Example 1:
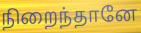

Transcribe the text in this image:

நிறைந்தானே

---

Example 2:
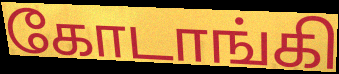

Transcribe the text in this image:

கோடாங்கி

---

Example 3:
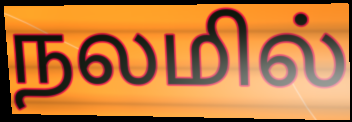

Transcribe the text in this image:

நலமில்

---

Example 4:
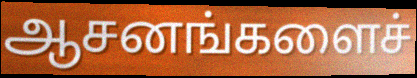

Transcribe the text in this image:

ஆசனங்களைச்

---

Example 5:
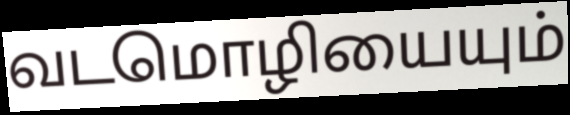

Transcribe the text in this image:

வடமொழியையும்